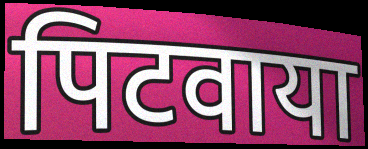
पिटवाया